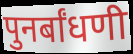
पुनर्बांधणी